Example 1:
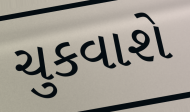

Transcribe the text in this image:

ચુકવાશે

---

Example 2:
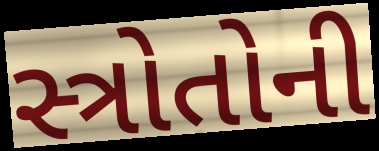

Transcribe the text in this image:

સ્ત્રોતોની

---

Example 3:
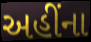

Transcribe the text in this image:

અહીંના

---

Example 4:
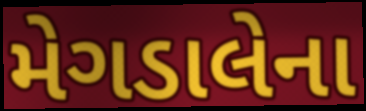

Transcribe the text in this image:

મેગડાલેના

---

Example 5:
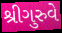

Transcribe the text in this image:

શ્રીગુરુવે